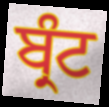
ਬ੍ਰੰਟ